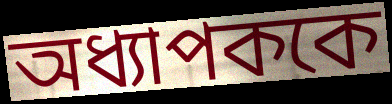
অধ্যাপককে